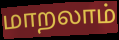
மாறலாம்